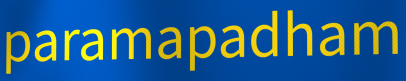
paramapadham